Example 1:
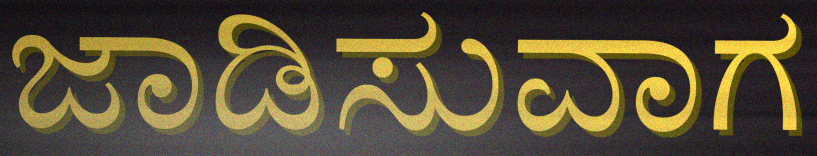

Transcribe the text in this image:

ಜಾಡಿಸುವಾಗ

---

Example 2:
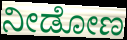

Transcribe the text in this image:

ನೀಡೋಣ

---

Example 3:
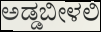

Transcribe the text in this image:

ಅಡ್ಡಬೀಳಲಿ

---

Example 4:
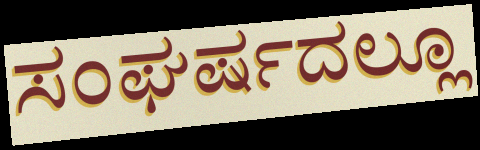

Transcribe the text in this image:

ಸಂಘರ್ಷದಲ್ಲೂ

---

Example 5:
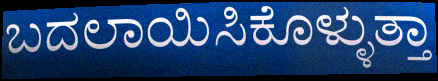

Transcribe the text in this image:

ಬದಲಾಯಿಸಿಕೊಳ್ಳುತ್ತಾ